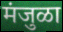
मंजुळा